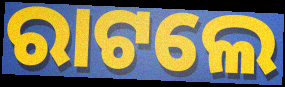
ରାଟଲେ